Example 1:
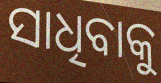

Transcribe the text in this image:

ସାଧିବାକୁ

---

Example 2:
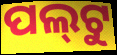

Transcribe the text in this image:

ପଲ୍‍ଟୁ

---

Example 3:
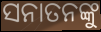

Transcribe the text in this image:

ସନାତନଙ୍କୁ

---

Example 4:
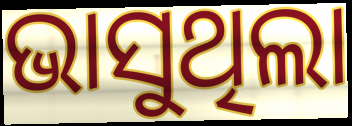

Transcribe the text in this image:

ଭାସୁଥିଲା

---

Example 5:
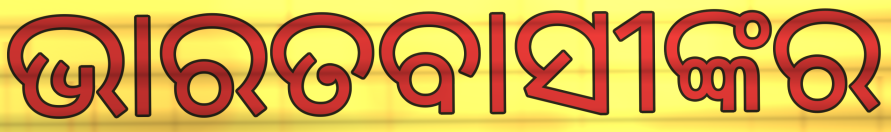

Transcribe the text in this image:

ଭାରତବାସୀଙ୍କର